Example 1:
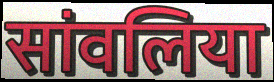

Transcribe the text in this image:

सांवलिया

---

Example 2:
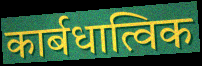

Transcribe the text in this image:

कार्बधात्विक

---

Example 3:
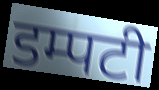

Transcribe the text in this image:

डम्पटी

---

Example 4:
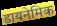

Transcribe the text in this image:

डायनेमिक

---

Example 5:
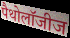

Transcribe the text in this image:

पैथोलॉजीज